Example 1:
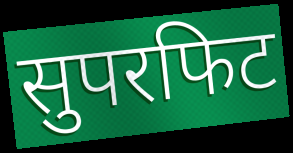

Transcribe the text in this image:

सुपरफिट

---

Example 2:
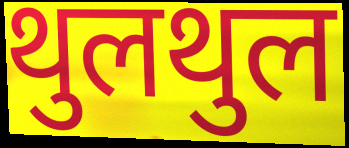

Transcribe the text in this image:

थुलथुल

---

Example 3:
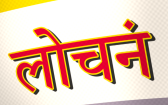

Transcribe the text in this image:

लोचनं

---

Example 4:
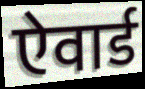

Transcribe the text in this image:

ऐवार्ड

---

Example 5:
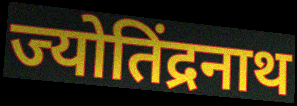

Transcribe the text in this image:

ज्योतिंद्रनाथ